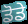
ਡੋਡੇ